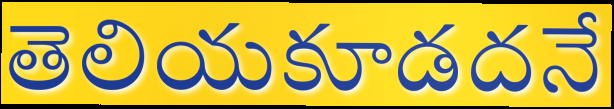
తెలియకూడదనే